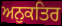
ਅਨੁਕਤਿਰ